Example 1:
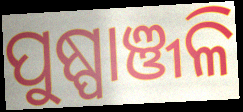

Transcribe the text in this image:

ପୁଷ୍ପାଞ୍ଜଳି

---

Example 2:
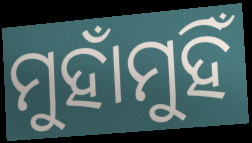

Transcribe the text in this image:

ମୁହାଁମୁହିଁ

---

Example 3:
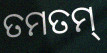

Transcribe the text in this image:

ତମତମ୍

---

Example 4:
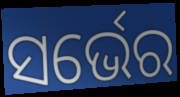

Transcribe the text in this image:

ସର୍ଭେର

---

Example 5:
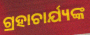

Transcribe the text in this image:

ଗ୍ରହାଚାର୍ଯ୍ୟଙ୍କ